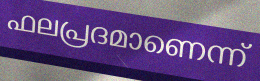
ഫലപ്രദമാണെന്ന്